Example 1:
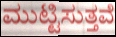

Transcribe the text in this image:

ಮುಟ್ಟಿಸುತ್ತವೆ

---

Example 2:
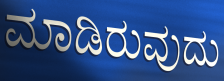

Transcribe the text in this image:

ಮಾಡಿರುವುದು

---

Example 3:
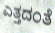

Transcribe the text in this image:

ಎತ್ತದಂತೆ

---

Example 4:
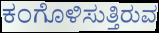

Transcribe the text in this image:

ಕಂಗೊಳಿಸುತ್ತಿರುವ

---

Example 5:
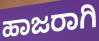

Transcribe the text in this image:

ಹಾಜರಾಗಿ